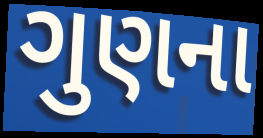
ગુણના